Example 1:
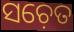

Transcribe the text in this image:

ସଚ଼େତ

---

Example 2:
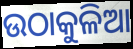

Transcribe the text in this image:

ଉଠାକୁଳିଆ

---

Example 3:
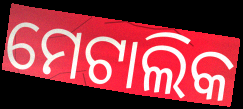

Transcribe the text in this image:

ମେଟାଲିକ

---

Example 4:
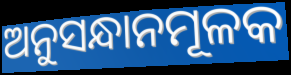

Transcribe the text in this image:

ଅନୁସନ୍ଧାନମୂଳକ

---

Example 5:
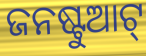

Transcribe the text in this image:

ଜନଷ୍ଟୁଆଟ୍